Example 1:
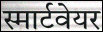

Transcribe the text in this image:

स्मार्टवेयर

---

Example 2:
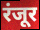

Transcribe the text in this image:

रंजूर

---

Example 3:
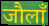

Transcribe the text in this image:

जौलाँ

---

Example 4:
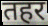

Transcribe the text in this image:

तहर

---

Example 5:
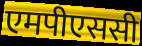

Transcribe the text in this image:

एमपीएससी